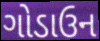
ગોડાઉન